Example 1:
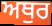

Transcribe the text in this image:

ਅਥੁਰ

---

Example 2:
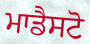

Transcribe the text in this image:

ਮਾਡੈਸਟੋ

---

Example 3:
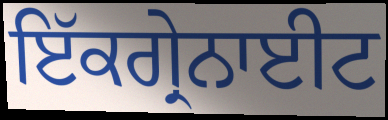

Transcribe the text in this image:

ਇੱਕਗ੍ਰੇਨਾਈਟ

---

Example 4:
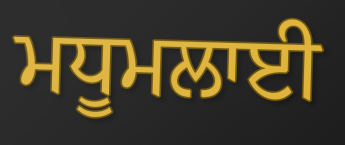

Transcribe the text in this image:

ਮਧੂਮਲਾਈ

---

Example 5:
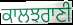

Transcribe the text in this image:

ਕਾਲਝਰਾਣੀ